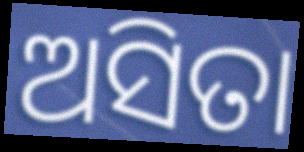
ଅସିତା